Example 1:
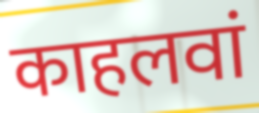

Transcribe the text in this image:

काहलवां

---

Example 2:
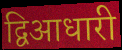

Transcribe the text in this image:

द्विआधारी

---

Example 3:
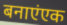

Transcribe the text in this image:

बनाएंएक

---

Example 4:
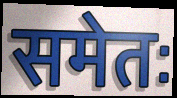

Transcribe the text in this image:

समेतः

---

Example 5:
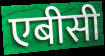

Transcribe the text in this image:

एबीसी